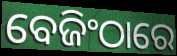
ବେଜିଂଠାରେ